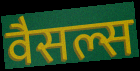
वैसल्स